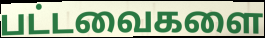
பட்டவைகளை